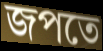
জপতে